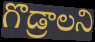
గొడ్రాలని